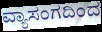
ವ್ಯಾಸಂಗದಿಂದ